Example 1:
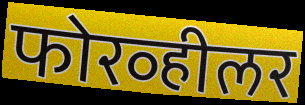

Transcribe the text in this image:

फोरव्हीलर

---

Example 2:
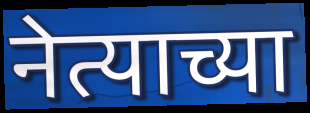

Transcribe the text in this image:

नेत्याच्या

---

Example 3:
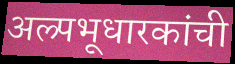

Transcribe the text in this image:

अल्पभूधारकांची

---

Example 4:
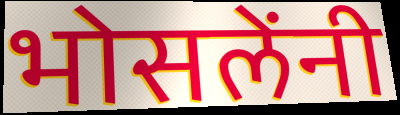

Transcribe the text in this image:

भोसलेंनी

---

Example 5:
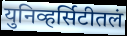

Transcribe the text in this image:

युनिव्हर्सिटीतलं